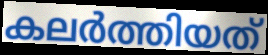
കലർത്തിയത്